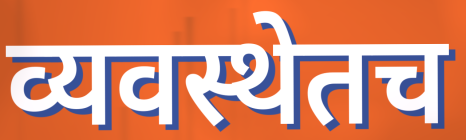
व्यवस्थेतच